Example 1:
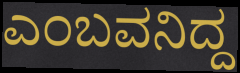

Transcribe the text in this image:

ಎಂಬವನಿದ್ದ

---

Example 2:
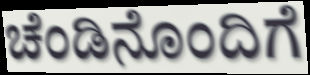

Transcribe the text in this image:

ಚೆಂಡಿನೊಂದಿಗೆ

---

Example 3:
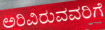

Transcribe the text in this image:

ಅರಿವಿರುವವರಿಗೆ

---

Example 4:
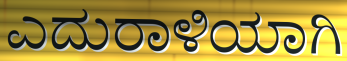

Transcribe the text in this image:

ಎದುರಾಳಿಯಾಗಿ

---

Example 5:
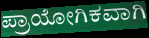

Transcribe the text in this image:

ಪ್ರಾಯೋಗಿಕವಾಗಿ